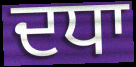
ਦਧਾ